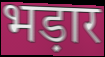
भड़ार